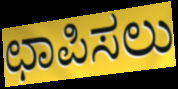
ಛಾಪಿಸಲು